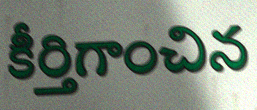
కీర్తిగాంచిన